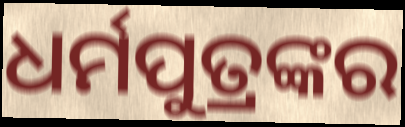
ଧର୍ମପୁତ୍ରଙ୍କର